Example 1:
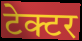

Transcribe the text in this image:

टेक्टर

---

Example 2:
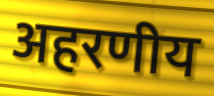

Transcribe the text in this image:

अहरणीय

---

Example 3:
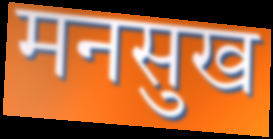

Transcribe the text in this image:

मनसुख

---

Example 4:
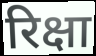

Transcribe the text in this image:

रिक्षा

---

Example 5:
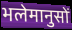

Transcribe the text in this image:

भलेमानुसों